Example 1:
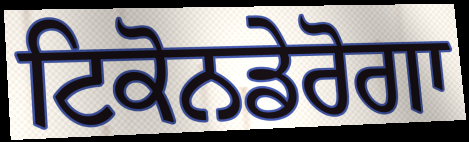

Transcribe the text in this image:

ਟਿਕੋਨਡੇਰੋਗਾ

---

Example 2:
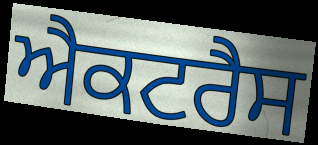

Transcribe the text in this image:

ਐਕਟਰੈਸ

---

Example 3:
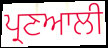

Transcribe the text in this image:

ਪ੍ਰਣਆਲੀ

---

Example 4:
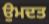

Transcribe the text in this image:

ਉਮਦਤ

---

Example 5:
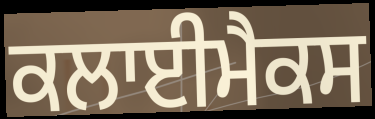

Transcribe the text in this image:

ਕਲਾਈਮੈਕਸ